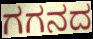
ಗಗನದ